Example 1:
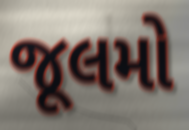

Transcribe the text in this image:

જૂલમો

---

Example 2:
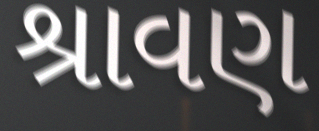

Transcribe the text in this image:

શ્રાવણ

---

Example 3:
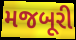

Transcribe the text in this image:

મજબૂરી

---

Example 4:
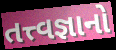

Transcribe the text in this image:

તત્ત્વજ્ઞાનો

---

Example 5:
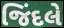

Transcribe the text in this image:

જિંદલે